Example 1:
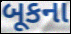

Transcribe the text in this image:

બૂકના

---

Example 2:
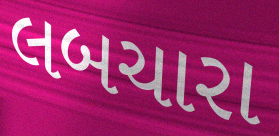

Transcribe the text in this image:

લબચારા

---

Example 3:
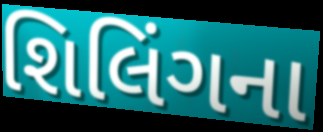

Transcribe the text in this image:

શિલિંગના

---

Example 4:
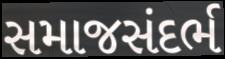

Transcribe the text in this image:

સમાજસંદર્ભ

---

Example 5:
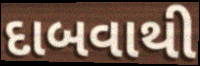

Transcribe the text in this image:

દાબવાથી